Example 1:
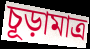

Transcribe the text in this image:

চূড়ামাত্র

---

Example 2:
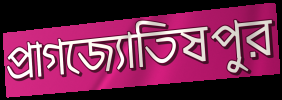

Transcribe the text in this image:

প্রাগজ্যোতিষপুর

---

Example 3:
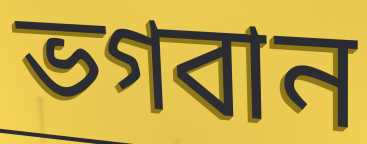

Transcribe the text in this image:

ভগবান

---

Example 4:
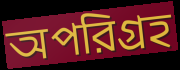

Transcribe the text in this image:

অপরিগ্রহ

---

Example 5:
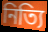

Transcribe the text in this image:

নিত্যি